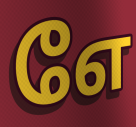
எே